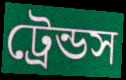
ট্রেন্ডস